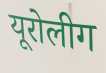
यूरोलीग